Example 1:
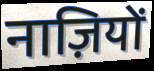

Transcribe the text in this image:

नाज़ियों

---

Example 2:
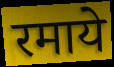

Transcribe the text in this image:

रमाये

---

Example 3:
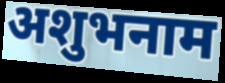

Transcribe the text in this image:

अशुभनाम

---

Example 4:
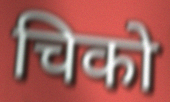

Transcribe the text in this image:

चिको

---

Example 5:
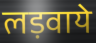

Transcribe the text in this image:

लड़वाये